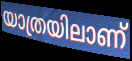
യാത്രയിലാണ്